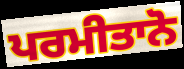
ਪਰਮੀਤਾਨੋ